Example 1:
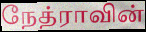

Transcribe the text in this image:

நேத்ராவின்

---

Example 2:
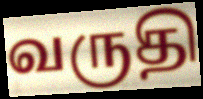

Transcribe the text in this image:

வருதி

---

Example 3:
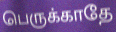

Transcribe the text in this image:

பெருக்காதே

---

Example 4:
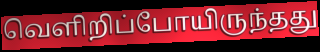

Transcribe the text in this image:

வெளிறிப்போயிருந்தது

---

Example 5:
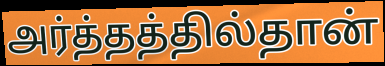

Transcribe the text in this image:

அர்த்தத்தில்தான்